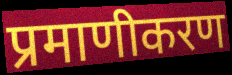
प्रमाणीकरण